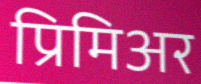
प्रिमिअर